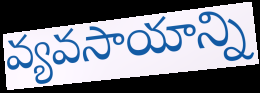
వ్యవసాయాన్ని